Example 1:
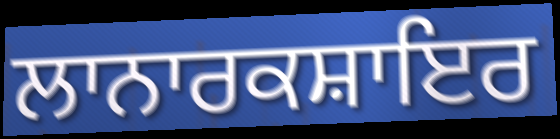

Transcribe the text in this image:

ਲਾਨਾਰਕਸ਼ਾਇਰ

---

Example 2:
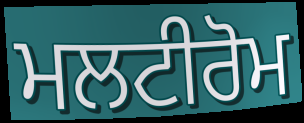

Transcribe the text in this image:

ਮਲਟੀਰੋਮ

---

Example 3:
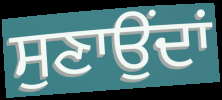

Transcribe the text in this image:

ਸੁਣਾਉਂਦਾਂ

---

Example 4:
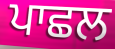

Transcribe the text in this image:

ਪਾਛਲ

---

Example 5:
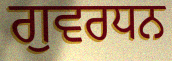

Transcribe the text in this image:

ਗੁਵਰਧਨ